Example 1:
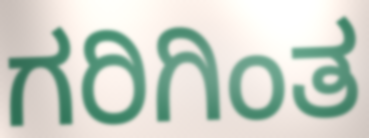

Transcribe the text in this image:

ಗರಿಗಿಂತ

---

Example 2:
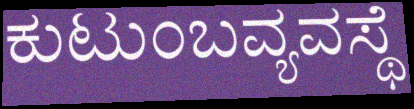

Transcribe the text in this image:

ಕುಟುಂಬವ್ಯವಸ್ಥೆ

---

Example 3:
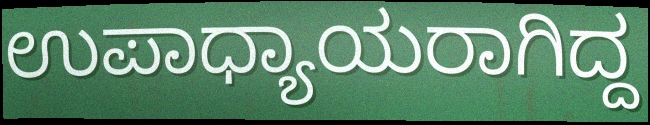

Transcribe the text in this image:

ಉಪಾಧ್ಯಾಯರಾಗಿದ್ದ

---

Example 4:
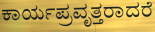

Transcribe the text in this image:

ಕಾರ್ಯಪ್ರವೃತ್ತರಾದರೆ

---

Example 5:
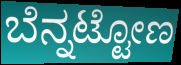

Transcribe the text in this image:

ಬೆನ್ನಟ್ಟೋಣ